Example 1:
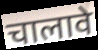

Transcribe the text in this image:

चालावे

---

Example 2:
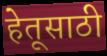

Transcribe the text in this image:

हेतूसाठी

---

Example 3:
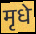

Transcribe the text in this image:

मृधे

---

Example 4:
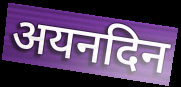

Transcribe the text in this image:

अयनदिन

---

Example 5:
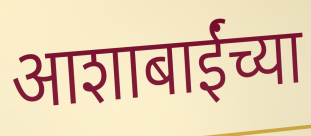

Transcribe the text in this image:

आशाबाईंच्या